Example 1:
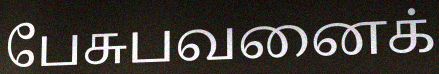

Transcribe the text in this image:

பேசுபவனைக்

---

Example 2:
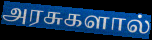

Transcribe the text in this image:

அரசுகளால்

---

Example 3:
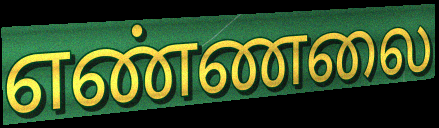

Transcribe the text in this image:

எண்ணலை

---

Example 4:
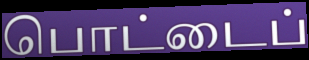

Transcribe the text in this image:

பொட்டைப்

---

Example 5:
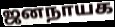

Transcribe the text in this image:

ஜனநாயக